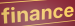
finance